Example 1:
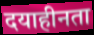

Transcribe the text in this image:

दयाहीनता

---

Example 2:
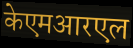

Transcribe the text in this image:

केएमआरएल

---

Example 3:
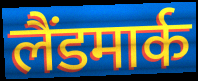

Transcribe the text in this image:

लैंडमार्क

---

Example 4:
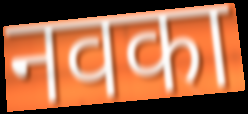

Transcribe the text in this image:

नवका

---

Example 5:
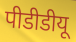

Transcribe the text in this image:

पीडीडीयू